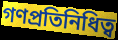
গণপ্রতিনিধিত্ব